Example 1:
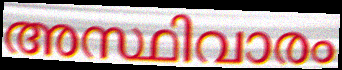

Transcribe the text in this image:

അസ്ഥിവാരം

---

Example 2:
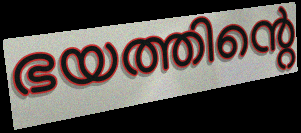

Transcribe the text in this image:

ഭയത്തിന്റെ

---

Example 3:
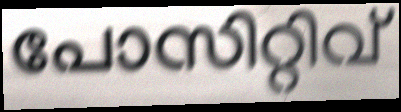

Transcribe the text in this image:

പോസിറ്റിവ്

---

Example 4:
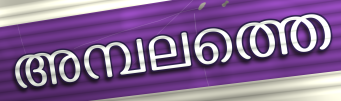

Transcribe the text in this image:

അമ്പലത്തെ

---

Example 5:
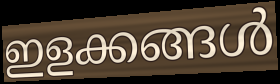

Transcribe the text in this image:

ഇളക്കങ്ങൾ